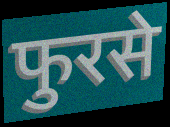
फुरसे